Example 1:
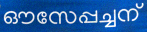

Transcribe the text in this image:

ഔസേപ്പച്ചന്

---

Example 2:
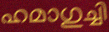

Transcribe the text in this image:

ഹമാഗുച്ചി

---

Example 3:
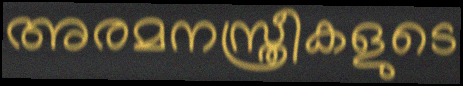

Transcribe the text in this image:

അരമനസ്ത്രീകളുടെ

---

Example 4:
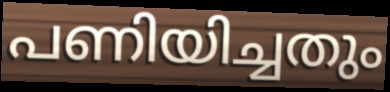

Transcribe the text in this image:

പണിയിച്ചതും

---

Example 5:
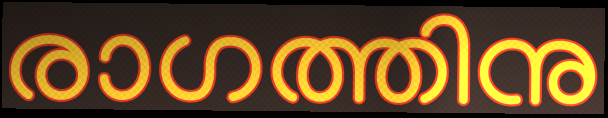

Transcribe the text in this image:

രാഗത്തിനു